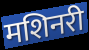
मशिनरी